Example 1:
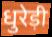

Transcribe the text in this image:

धुरेड़ी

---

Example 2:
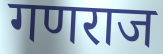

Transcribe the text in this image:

गणराज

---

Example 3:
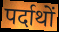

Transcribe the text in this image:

पर्दाथों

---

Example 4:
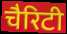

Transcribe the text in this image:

चैरिटी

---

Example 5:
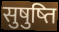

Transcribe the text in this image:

सुषुष्ति